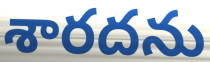
శారదను